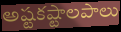
అష్టకష్టాలపాలు